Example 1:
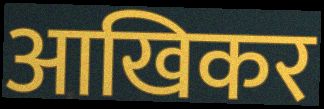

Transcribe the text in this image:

आखिकर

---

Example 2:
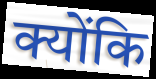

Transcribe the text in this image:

क्‍योंकि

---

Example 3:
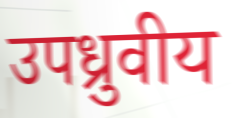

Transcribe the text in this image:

उपध्रुवीय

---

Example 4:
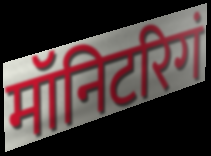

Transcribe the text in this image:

मॉनिटरिगं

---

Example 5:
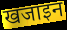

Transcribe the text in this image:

खजाइन